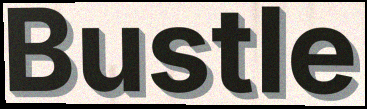
Bustle